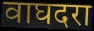
वाघदरा